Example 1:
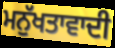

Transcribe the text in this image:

ਮਨੁੱਖਤਾਵਾਦੀ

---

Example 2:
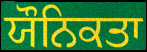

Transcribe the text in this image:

ਯੌਨਿਕਤਾ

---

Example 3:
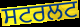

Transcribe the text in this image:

ਸਟਰਲਟ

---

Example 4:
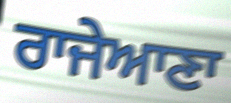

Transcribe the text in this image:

ਰਾਜੇਆਣਾ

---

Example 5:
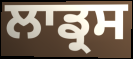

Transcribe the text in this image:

ਲਾਡ੍ਰਸ